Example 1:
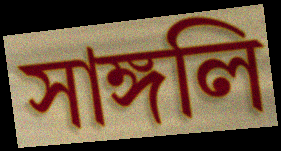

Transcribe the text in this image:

সাঙ্গলি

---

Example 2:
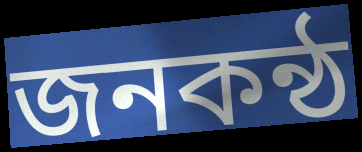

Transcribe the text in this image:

জনকন্ঠ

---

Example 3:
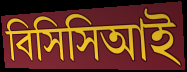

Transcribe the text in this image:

বিসিসিআই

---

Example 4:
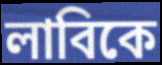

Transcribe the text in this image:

লাবিকে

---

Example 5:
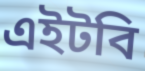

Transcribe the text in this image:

এইটবি